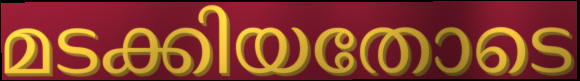
മടക്കിയതോടെ